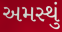
અમસ્થું